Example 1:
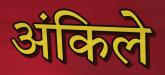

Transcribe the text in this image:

अंकिले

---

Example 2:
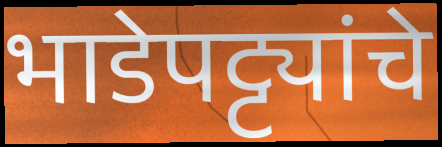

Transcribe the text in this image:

भाडेपट्ट्यांचे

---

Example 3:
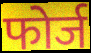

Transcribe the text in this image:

फोर्ज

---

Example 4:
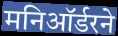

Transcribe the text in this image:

मनिऑर्डरने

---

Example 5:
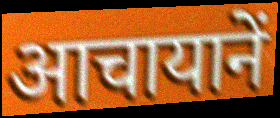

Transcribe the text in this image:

आचायानें